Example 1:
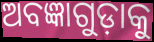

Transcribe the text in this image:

ଅବଜ୍ଞାଗୁଡ଼ାକୁ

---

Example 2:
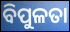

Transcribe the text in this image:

ବିପୁଳତା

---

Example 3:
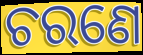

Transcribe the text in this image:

ଚରଣେ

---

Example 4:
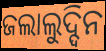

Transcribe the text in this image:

ଜଲାଲୁଦ୍ଦିନ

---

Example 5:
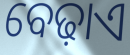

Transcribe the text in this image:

ବେଢ଼ାଏ